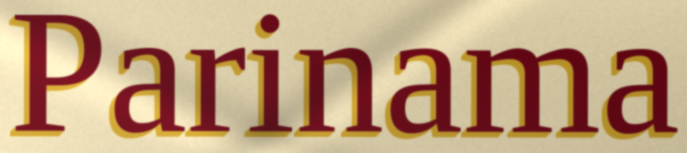
Parinama